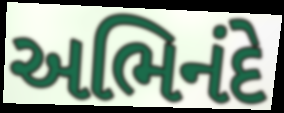
અભિનંદે